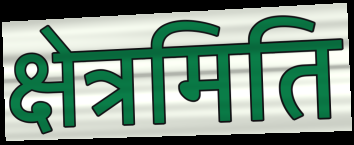
क्षेत्रमिति